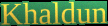
Khaldun